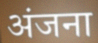
अंजना